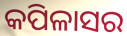
କପିଳାସର